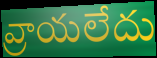
వ్రాయలేదు